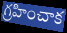
గ్రహించాక